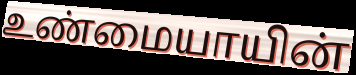
உண்மையாயின்